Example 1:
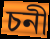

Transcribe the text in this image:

চনী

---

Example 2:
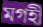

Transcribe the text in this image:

মগহী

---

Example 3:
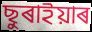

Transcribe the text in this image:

ছুৰাইয়াৰ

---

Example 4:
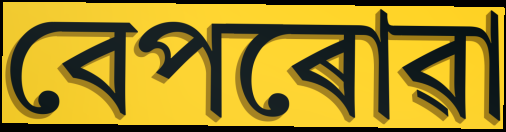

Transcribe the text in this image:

বেপৰোৱা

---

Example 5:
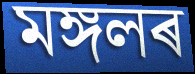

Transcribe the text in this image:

মঙ্গলৰ